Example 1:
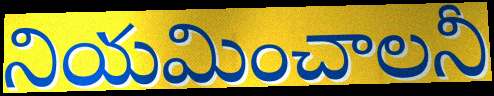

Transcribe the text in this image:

నియమించాలనీ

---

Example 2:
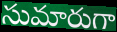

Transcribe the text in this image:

సుమారుగా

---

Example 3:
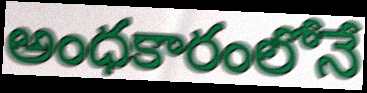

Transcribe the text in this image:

అంధకారంలోనే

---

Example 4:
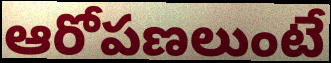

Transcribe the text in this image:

ఆరోపణలుంటే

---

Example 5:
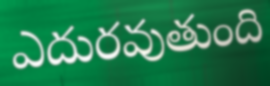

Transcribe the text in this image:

ఎదురవుతుంది